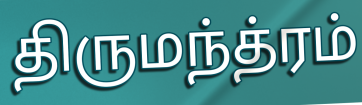
திருமந்த்ரம்